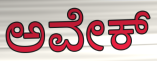
ಅವೇಕ್